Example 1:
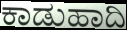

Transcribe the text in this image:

ಕಾಡುಹಾದಿ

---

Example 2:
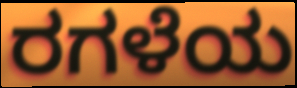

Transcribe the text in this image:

ರಗಳೆಯ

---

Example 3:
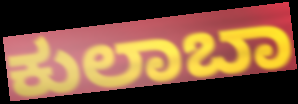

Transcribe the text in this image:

ಕುಲಾಬಾ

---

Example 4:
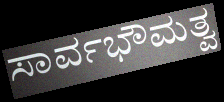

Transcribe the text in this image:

ಸಾರ್ವಭೌಮತ್ವ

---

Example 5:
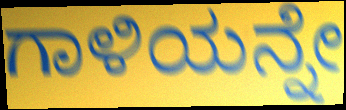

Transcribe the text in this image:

ಗಾಳಿಯನ್ನೇ